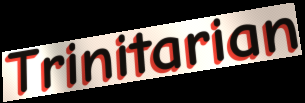
Trinitarian